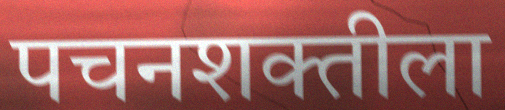
पचनशक्तीला